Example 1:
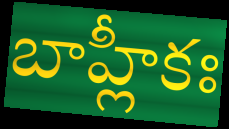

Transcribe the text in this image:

బాహ్లీకః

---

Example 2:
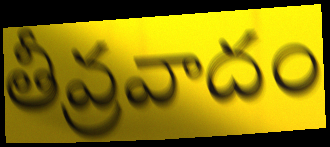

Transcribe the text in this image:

తీవ్రవాదం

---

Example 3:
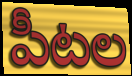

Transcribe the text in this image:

పీటల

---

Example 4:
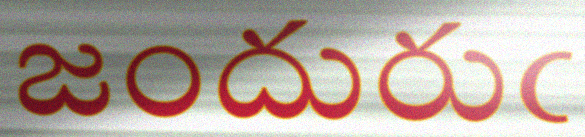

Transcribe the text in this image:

జందురుఁ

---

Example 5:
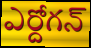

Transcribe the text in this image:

ఎర్దోగన్